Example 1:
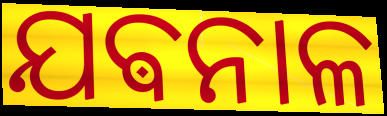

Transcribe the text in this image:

ଯଵନାଳ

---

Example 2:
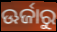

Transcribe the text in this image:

ଊର୍ଜାରୁ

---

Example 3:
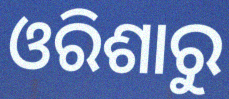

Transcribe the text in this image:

ଓରିଶାରୁ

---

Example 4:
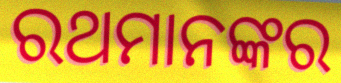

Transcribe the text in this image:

ରଥମାନଙ୍କର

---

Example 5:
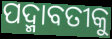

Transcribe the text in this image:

ପଦ୍ମାବତୀକୁ